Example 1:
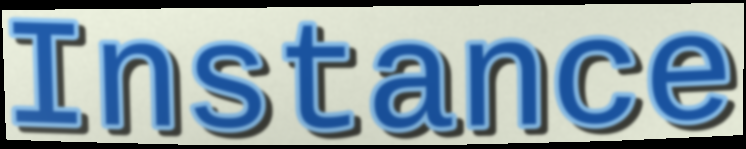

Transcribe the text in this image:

Instance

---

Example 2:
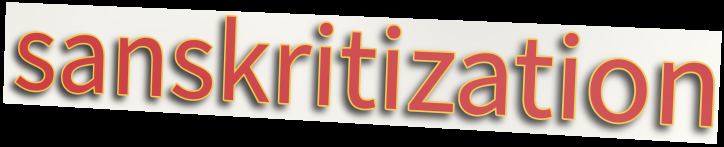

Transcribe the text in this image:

sanskritization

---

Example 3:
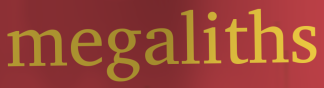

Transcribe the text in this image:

megaliths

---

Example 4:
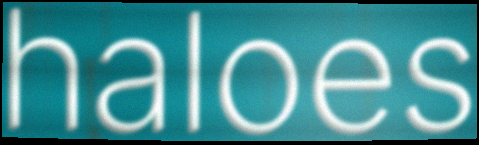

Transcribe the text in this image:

haloes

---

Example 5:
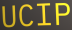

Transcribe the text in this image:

UCIP